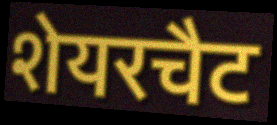
शेयरचैट